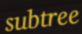
subtree